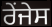
ਰੇਂਜੇਸ